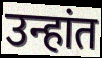
उन्हांत